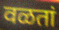
वळतां